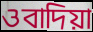
ওবাদিয়া